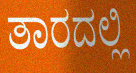
ತಾರದಲ್ಲಿ